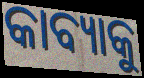
କାବ୍ୟାକୁ